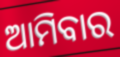
ଆମିବାର